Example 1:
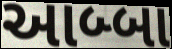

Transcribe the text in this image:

આબ્બા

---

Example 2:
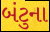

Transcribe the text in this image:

બંટુના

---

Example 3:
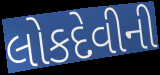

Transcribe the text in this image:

લોકદેવીની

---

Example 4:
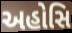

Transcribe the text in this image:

અહોસિ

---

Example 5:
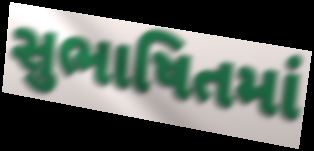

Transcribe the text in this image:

સુભાષિતમાં